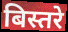
बिस्तरे